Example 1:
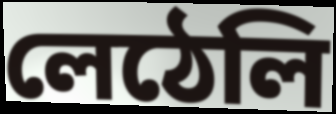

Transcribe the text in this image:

লেঠেলি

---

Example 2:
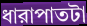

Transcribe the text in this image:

ধারাপাতটা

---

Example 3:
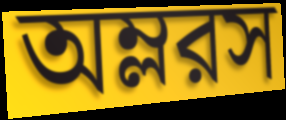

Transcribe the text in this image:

অম্লরস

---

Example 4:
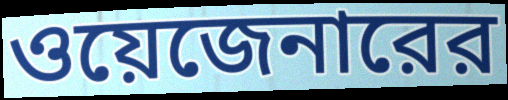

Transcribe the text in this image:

ওয়েজেনারের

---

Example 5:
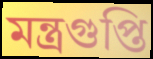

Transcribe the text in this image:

মন্ত্রগুপ্তি